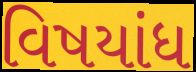
વિષયાંધ